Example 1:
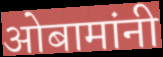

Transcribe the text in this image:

ओबामांनी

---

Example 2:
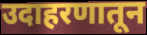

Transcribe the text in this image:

उदाहरणातून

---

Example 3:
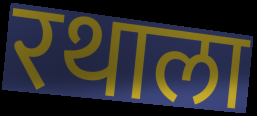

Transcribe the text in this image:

रथाला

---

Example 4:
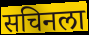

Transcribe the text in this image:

सचिनला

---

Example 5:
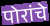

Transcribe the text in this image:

पोरांचे